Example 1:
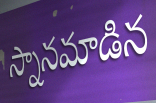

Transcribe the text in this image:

స్నానమాడిన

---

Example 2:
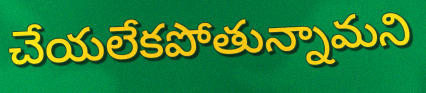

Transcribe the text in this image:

చేయలేకపోతున్నామని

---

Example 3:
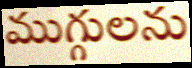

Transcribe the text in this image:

ముగ్గులను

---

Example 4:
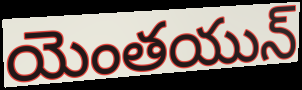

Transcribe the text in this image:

యెంతయున్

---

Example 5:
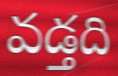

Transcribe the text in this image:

వడ్తది